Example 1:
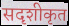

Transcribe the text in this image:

सदृशीकृत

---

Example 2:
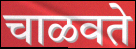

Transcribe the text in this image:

चाळवते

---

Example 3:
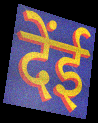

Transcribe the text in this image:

देंई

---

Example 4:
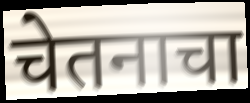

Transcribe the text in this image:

चेतनाचा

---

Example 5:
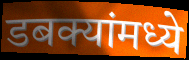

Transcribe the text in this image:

डबक्यांमध्ये